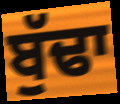
ਬੁੱਢਾ